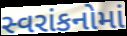
સ્વરાંકનોમાં